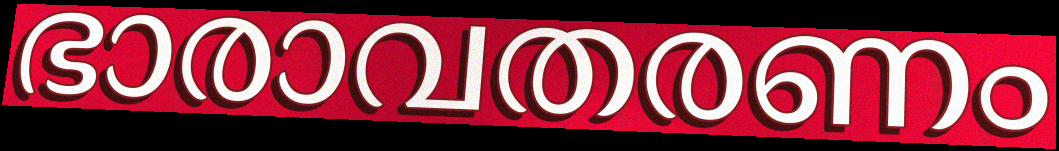
ഭാരാവതരണം